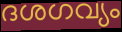
ദശഗവ്യം